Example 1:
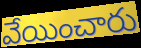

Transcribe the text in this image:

వేయించారు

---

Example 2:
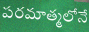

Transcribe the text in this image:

పరమాత్మలోనే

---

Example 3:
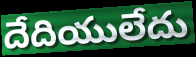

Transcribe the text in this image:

దేదియులేదు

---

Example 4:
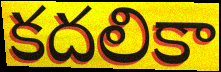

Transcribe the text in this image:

కదలికా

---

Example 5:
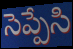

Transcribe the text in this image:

సెప్పేసి